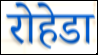
रोहेडा